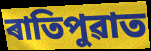
ৰাতিপুৱাত